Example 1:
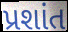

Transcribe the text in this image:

પ્રશાંત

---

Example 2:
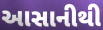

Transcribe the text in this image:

આસાનીથી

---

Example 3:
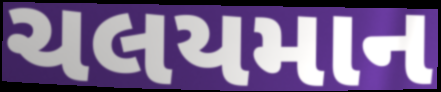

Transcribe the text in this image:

ચલયમાન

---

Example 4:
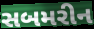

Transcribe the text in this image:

સબમરીન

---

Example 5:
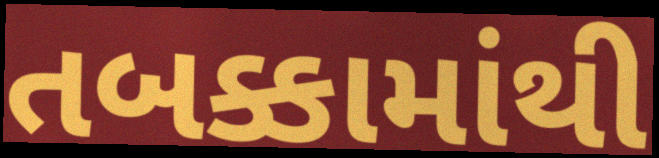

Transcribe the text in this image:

તબક્કામાંથી